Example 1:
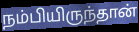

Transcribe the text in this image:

நம்பியிருந்தான்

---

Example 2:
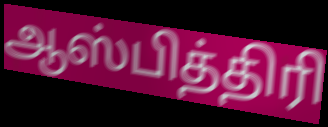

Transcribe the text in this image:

ஆஸ்பித்திரி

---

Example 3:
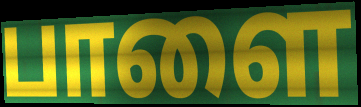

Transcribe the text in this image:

பாளை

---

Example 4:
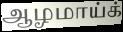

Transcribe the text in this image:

ஆழமாய்க்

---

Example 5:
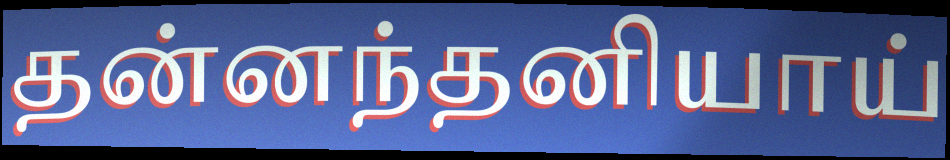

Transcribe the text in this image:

தன்னந்தனியாய்